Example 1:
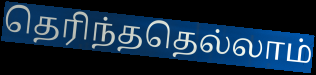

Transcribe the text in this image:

தெரிந்ததெல்லாம்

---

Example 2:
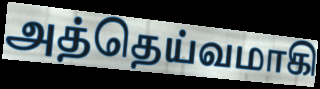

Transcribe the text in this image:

அத்தெய்வமாகி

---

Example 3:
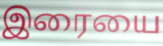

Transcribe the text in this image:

இரையை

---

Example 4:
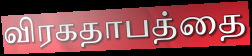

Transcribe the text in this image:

விரகதாபத்தை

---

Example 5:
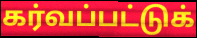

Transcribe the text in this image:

கர்வப்பட்டுக்